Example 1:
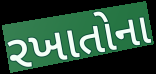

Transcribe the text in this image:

રખાતોના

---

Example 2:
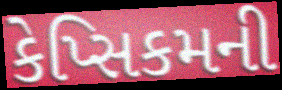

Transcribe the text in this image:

કેપ્સિકમની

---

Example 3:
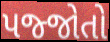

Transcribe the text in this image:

પજ્જોતો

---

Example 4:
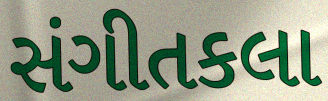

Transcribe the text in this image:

સંગીતકલા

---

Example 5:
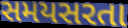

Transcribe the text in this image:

સમયસરતા